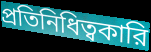
প্রতিনিধিত্বকারি